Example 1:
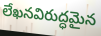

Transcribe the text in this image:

లేఖనవిరుద్ధమైన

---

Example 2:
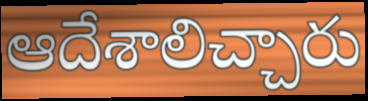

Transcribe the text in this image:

ఆదేశాలిచ్చారు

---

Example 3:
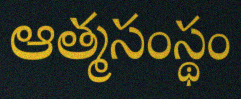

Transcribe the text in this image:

ఆత్మసంస్థం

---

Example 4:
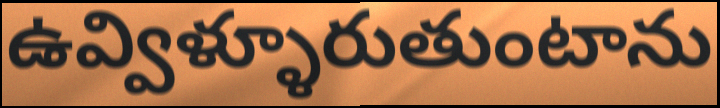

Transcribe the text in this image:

ఉవ్విళ్ళూరుతుంటాను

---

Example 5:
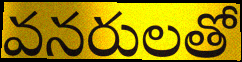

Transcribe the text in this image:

వనరులతో